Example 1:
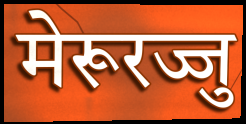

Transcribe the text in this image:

मेरूरज्जु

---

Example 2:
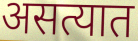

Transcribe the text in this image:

असत्यात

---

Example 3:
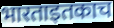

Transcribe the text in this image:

भारताइतकाच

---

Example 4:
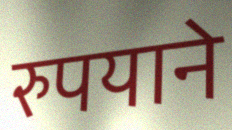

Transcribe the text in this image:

रुपयाने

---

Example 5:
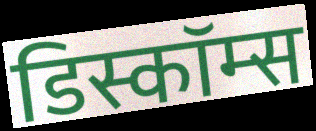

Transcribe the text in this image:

डिस्कॉम्स